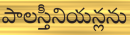
పాలస్తీనియన్లను